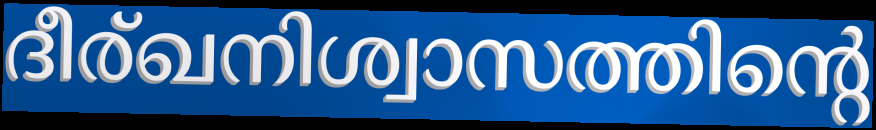
ദീര്ഖനിശ്വാസത്തിന്റെ